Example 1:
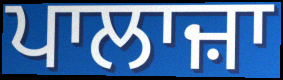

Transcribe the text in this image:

ਪਾਲਾਜ਼ਾ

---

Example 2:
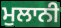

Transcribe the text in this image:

ਮੁਲਾਨੀ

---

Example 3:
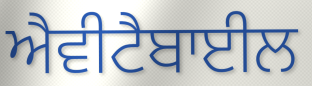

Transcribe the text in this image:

ਐਵੀਟੈਬਾਈਲ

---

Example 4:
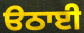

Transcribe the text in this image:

ੳਠਾਈ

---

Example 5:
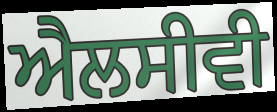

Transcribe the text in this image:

ਐਲਸੀਵੀ